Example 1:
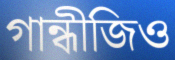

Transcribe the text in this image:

গান্ধীজিও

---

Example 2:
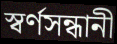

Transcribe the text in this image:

স্বর্ণসন্ধানী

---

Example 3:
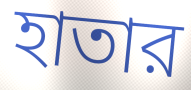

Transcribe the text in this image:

হাতার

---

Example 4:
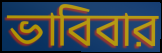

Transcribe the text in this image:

ভাবিবার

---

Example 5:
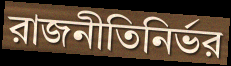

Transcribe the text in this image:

রাজনীতিনির্ভর